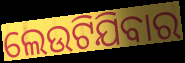
ଲେଉଟିଯିବାର